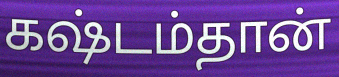
கஷ்டம்தான்